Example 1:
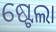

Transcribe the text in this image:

ଷ୍ଟେଲା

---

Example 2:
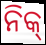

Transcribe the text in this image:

ନିକ୍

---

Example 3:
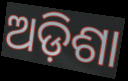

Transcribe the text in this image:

ଅଡ଼ିଶା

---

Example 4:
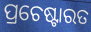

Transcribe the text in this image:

ପ୍ରଚେଷ୍ଟାରତ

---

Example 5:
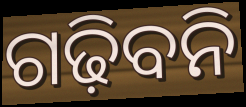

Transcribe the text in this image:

ଗଢ଼ିବନି